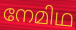
നേമിഥ